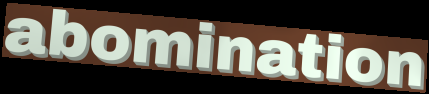
abomination